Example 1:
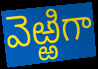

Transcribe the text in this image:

వెఱ్ఱిగా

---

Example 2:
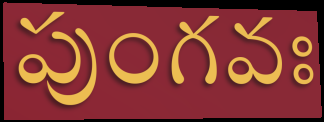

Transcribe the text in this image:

పుంగవః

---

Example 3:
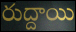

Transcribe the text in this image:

రుద్దాయి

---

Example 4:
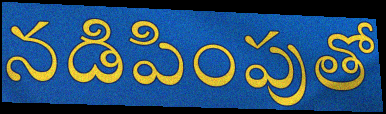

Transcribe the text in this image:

నడిపింపుతో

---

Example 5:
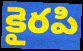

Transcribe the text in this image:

కైరపి